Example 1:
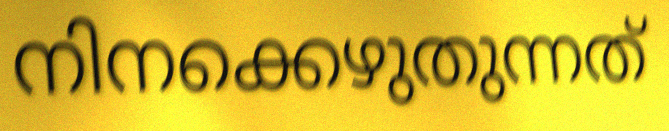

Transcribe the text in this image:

നിനക്കെഴുതുന്നത്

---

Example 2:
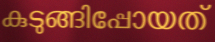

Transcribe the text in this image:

കുടുങ്ങിപ്പോയത്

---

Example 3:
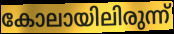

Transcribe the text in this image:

കോലായിലിരുന്ന്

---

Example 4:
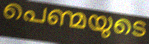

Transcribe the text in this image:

പെണ്മയുടെ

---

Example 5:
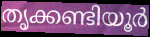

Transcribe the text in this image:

തൃക്കണ്ടിയൂർ